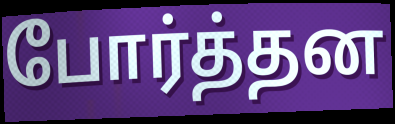
போர்த்தன